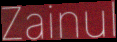
Zainul